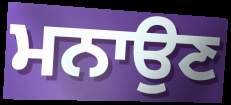
ਮਨਾਉਣ